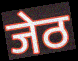
जेठ